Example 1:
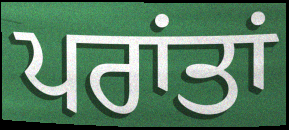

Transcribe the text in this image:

ਪਰਾਂਤਾਂ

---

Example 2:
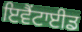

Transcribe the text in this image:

ਇਵੈਂਟਾਈਡ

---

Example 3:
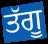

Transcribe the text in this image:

ਤੱਗੂ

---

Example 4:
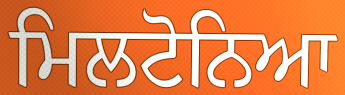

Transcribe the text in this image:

ਮਿਲਟੋਨਿਆ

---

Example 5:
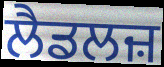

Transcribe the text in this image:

ਲੈਡਲਜ਼